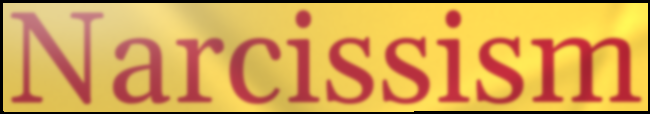
Narcissism